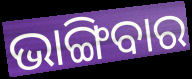
ଭାଙ୍ଗିବାର